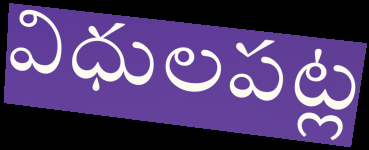
విధులపట్ల